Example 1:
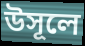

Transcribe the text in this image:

উসূলে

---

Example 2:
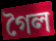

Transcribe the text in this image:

গৈল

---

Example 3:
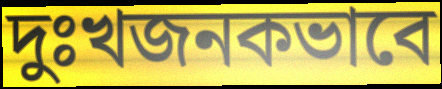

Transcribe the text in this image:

দুঃখজনকভাবে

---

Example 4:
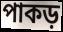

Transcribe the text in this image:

পাকড়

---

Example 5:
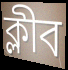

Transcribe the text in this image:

ক্লীব